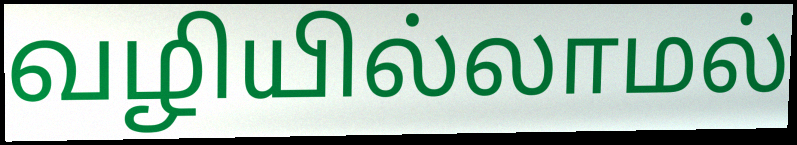
வழியில்லாமல்